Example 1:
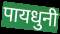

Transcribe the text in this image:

पायधुनी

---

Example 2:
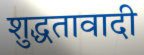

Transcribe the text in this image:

शुद्धतावादी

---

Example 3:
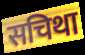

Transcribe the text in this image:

सचिथा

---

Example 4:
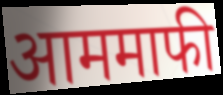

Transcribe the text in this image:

आममाफी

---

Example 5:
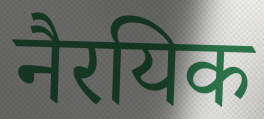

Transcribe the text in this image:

नैरयिक